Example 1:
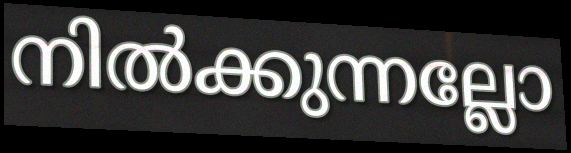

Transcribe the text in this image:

നിൽക്കുന്നല്ലോ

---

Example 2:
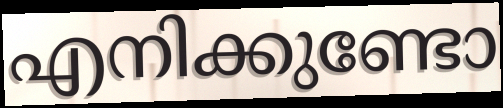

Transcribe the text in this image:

എനിക്കുണ്ടോ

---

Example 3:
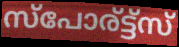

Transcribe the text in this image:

സ്പോര്ട്ട്സ്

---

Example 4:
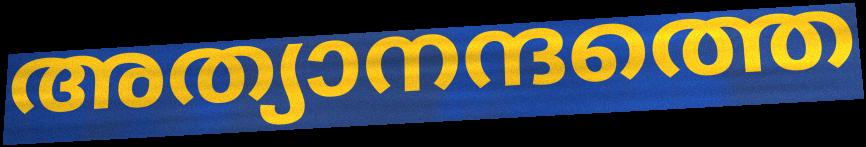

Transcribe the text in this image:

അത്യാനന്ദത്തെ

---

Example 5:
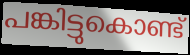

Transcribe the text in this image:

പങ്കിട്ടുകൊണ്ട്